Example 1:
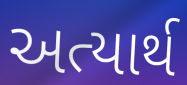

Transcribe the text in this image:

અત્યાર્થ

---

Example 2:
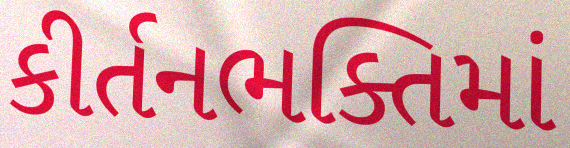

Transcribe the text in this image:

કીર્તનભક્તિમાં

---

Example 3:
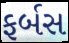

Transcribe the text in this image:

ફર્બસ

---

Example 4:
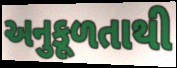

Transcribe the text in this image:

અનુકૂળતાથી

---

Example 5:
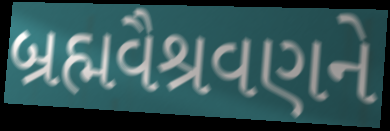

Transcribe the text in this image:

બ્રહ્મવૈશ્રવણને